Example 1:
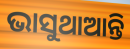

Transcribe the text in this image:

ଭାସୁଥାଆନ୍ତି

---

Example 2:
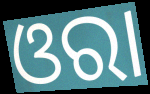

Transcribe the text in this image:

ଓରା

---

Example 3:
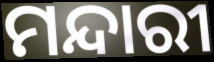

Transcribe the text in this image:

ମନ୍ଦାରୀ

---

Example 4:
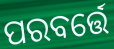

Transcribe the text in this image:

ପରବର୍ତ୍ତେ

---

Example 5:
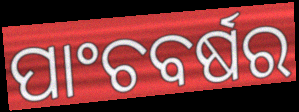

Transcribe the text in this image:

ପାଂଚବର୍ଷର